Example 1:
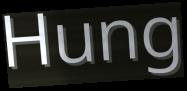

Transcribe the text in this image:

Hung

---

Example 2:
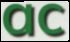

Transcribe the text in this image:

ac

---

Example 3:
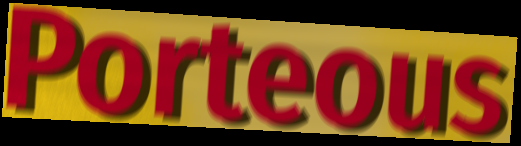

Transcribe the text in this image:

Porteous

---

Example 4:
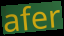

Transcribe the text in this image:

afer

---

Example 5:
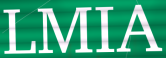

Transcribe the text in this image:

LMIA